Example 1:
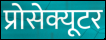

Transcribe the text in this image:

प्रोसेक्यूटर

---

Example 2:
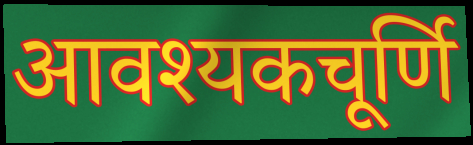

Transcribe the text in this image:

आवश्यकचूर्णि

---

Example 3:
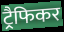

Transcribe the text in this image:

ट्रैफिकर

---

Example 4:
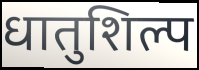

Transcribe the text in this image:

धातुशिल्प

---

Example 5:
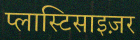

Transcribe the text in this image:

प्लास्टिसाइज़र